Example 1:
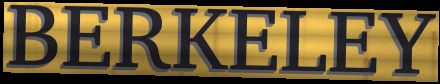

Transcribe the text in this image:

BERKELEY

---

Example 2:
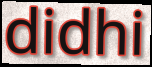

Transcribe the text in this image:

didhi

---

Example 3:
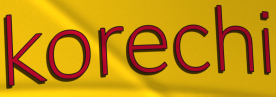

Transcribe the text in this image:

korechi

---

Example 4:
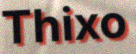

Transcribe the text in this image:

Thixo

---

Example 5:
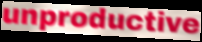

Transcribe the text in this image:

unproductive